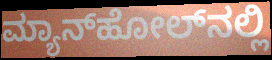
ಮ್ಯಾನ್‌ಹೋಲ್‌ನಲ್ಲಿ